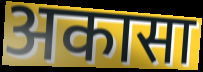
अकासा